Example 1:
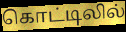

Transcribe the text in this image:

கொட்டிலில்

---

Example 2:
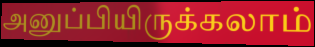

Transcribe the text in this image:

அனுப்பியிருக்கலாம்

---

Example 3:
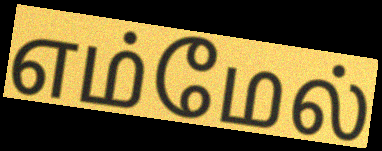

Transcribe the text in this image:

எம்மேல்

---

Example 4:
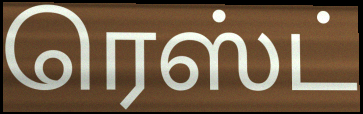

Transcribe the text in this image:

ரெஸ்ட்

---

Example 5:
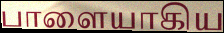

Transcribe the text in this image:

பாளையாகிய